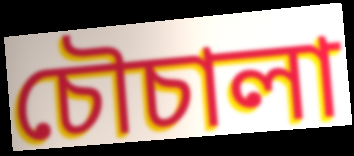
চৌচালা